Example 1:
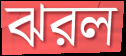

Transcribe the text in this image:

ঝরল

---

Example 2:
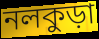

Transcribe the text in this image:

নলকুড়া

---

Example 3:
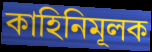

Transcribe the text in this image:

কাহিনিমূলক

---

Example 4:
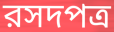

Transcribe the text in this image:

রসদপত্র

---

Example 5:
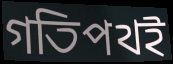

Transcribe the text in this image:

গতিপথই